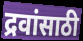
द्रवांसाठी